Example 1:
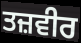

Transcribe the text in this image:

ਤਜ਼ਵੀਰ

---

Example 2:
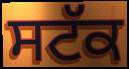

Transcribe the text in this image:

ਸਟੱਕ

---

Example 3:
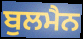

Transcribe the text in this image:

ਬੁਲਮੈਨ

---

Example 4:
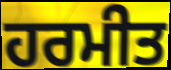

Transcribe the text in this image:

ਹਰਮੀਤ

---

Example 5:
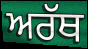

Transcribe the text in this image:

ਅਰੱਥ